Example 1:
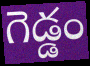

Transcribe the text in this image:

గెడ్డం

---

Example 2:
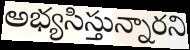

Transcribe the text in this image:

అభ్యసిస్తున్నారని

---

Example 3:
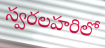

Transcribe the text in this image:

స్వరలహరిలో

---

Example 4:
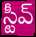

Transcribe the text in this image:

స్టీవ్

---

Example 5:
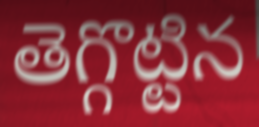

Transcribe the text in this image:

తెగ్గొట్టిన